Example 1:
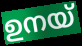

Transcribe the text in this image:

ഉനയ്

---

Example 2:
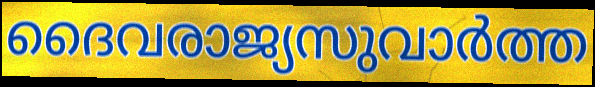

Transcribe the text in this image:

ദൈവരാജ്യസുവാർത്ത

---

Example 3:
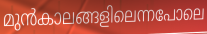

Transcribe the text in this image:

മുൻകാലങ്ങളിലെന്നപോലെ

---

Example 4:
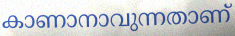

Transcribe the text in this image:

കാണാനാവുന്നതാണ്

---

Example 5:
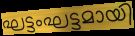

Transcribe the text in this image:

ഘട്ടംഘട്ടമായി